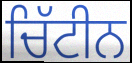
ਚਿੱਟੀਨ